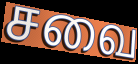
சவை